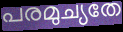
പരമുച്യതേ